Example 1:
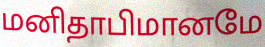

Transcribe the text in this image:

மனிதாபிமானமே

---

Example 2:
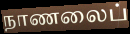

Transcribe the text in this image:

நாணலைப்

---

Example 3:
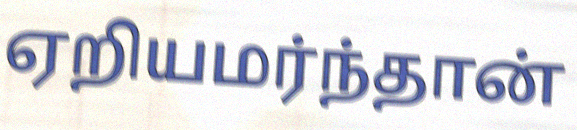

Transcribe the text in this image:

ஏறியமர்ந்தான்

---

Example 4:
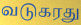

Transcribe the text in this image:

வடுகரது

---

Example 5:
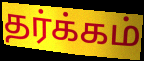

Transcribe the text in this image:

தர்க்கம்